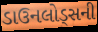
ડાઉનલોડ્સની